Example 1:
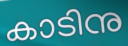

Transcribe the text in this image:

കാടിനു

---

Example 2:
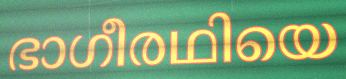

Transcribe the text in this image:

ഭാഗീരഥിയെ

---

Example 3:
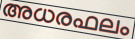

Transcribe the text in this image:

അധരഫലം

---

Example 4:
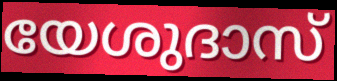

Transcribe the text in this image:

യേശുദാസ്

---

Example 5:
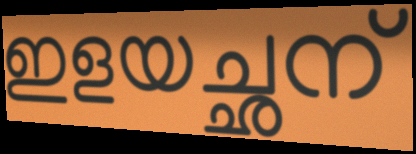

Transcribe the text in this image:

ഇളയച്ഛന്